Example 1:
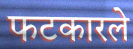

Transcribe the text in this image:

फटकारले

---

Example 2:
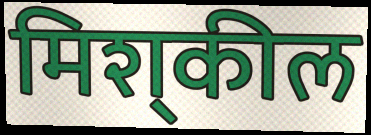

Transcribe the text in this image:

मिश्कील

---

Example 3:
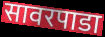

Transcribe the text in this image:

सावरपाडा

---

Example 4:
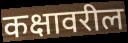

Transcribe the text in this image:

कक्षावरील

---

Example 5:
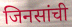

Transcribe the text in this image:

जिनसांची